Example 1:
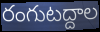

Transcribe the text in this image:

రంగుటద్దాల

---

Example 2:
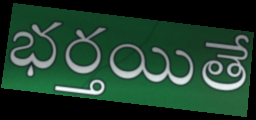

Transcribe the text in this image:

భర్తయితే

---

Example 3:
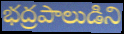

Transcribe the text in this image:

భద్రపాలుడిని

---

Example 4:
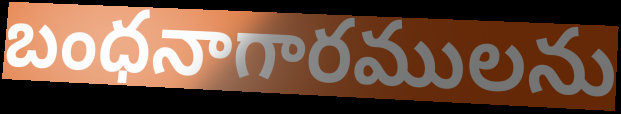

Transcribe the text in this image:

బంధనాగారములను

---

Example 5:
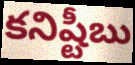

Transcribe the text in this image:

కనిష్టీబు